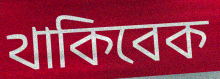
থাকিবেক